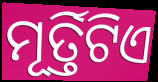
ମୂର୍ତ୍ତିଟିଏ